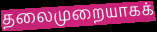
தலைமுறையாகக்